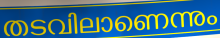
തടവിലാണെന്നും